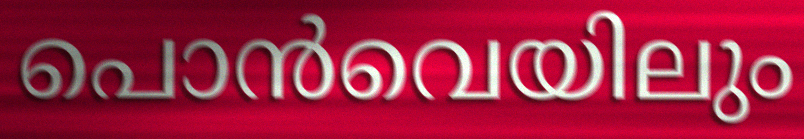
പൊൻവെയിലും